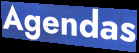
Agendas